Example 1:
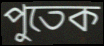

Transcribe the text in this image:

পুতেক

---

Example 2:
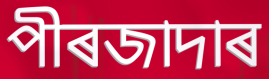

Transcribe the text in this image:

পীৰজাদাৰ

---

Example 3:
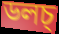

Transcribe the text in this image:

ডলচ্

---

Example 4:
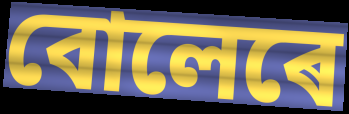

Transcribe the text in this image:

বোলেৰে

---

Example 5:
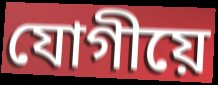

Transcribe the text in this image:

যোগীয়ে